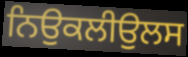
ਨਿਉਕਲੀਉਲਸ